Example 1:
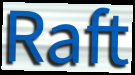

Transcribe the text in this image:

Raft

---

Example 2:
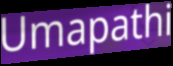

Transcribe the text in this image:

Umapathi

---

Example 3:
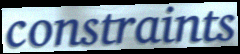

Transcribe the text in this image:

constraints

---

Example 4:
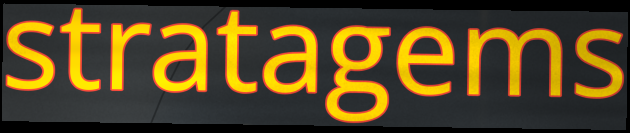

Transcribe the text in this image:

stratagems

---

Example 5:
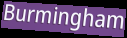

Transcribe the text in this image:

Burmingham